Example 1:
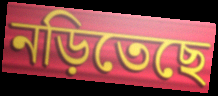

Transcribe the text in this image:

নড়িতেছে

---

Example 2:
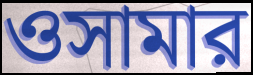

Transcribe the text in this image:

ওসামার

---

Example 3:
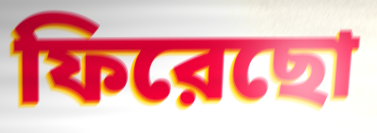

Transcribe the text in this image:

ফিরেছো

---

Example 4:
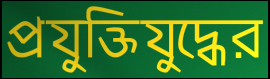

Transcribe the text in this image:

প্রযুক্তিযুদ্ধের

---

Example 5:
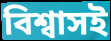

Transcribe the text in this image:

বিশ্বাসই